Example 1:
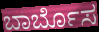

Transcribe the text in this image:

ಬಾರ್ಬೊಸ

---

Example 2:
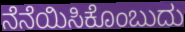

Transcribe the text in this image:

ನೆನೆಯಿಸಿಕೊಂಬುದು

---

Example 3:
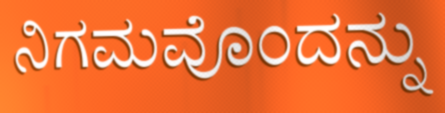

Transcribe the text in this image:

ನಿಗಮವೊಂದನ್ನು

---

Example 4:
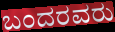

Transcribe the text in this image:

ಬಂದರವರು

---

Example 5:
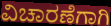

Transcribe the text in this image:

ವಿಚಾರಣೆಗಾಗಿ